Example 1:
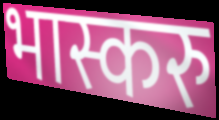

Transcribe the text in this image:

भास्करु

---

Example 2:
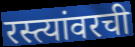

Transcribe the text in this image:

रस्त्यांवरची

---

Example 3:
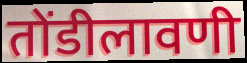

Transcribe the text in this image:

तोंडीलावणी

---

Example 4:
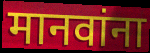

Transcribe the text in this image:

मानवांना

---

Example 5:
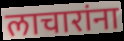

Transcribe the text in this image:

लाचारांना